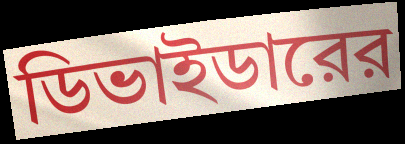
ডিভাইডারের